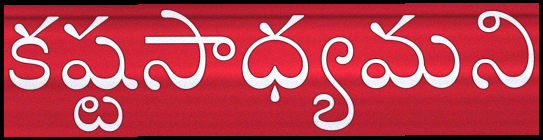
కష్టసాధ్యమని